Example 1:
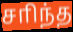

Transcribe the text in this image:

சரிந்த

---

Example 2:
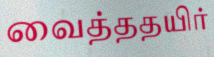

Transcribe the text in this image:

வைத்ததயிர்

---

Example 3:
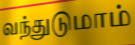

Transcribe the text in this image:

வந்துடுமாம்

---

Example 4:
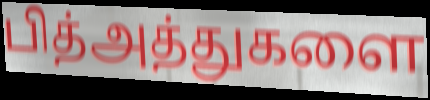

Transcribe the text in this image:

பித்அத்துகளை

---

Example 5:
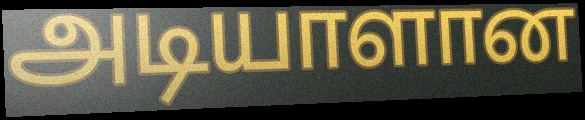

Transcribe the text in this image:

அடியாளான